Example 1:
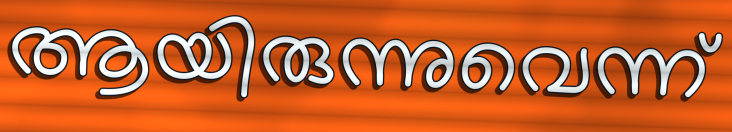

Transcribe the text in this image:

ആയിരുന്നുവെന്ന്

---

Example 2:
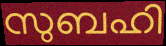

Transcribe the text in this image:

സുബഹി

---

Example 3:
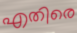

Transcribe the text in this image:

എതിരെ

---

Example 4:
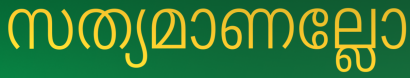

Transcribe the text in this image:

സത്യമാണല്ലോ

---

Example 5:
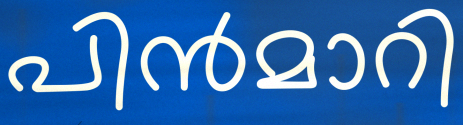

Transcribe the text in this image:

പിൻമാറി